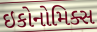
ઇકોનોમિક્સ